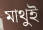
মাথুই